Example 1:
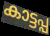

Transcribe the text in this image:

കാട്ടപ്പ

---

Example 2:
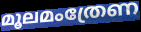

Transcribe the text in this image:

മൂലമംത്രേണ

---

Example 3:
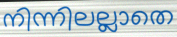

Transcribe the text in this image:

നിന്നിലല്ലാതെ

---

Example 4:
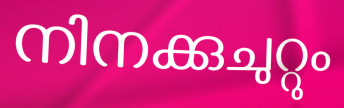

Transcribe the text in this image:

നിനക്കുചുറ്റും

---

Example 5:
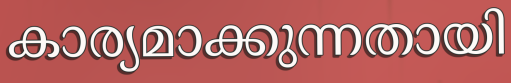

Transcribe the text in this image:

കാര്യമാക്കുന്നതായി